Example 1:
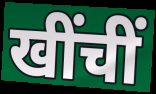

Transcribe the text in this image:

खींचीं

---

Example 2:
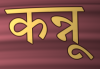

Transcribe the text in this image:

कन्नू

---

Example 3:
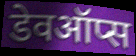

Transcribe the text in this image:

डेवऑप्स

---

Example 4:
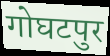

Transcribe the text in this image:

गोघटपुर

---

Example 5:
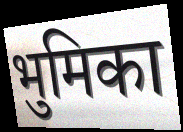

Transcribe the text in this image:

भुमिका